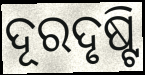
ଦୂରଦୃଷ୍ଟି